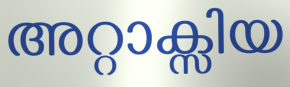
അറ്റാക്സിയ